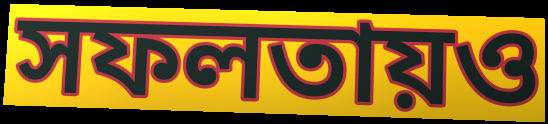
সফলতায়ও